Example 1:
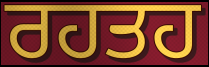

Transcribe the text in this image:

ਰਹਤਹ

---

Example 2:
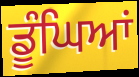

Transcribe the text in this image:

ਡੂੰਘਿਆਂ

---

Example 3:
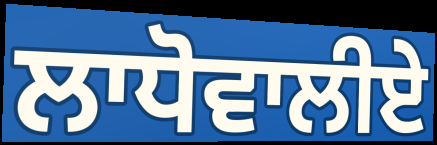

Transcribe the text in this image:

ਲਾਧੋਵਾਲੀਏ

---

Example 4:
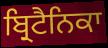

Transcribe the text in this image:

ਬ੍ਰਿਟੈਨਿਕਾ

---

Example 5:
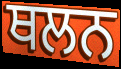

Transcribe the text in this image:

ਥਲਨ